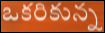
ఒకరికున్న